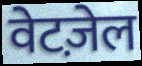
वेटज़ेल